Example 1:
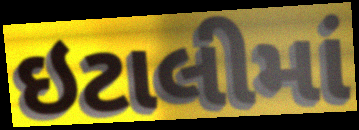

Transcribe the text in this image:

ઇટાલીમાં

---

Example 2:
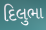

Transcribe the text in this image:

દિલુભા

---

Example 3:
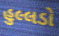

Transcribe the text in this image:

હુલ્લડો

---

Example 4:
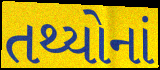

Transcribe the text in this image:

તથ્યોનાં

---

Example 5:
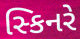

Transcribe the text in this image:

સ્કિનરે